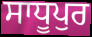
ਸਾਧੂਪੁਰ